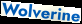
Wolverine